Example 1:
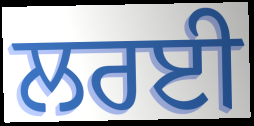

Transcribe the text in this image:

ਲਰਈ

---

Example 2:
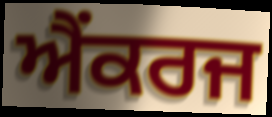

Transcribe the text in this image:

ਐਂਕਰਜ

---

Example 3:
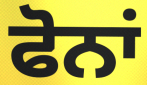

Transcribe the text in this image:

ਫੋਨਾਂ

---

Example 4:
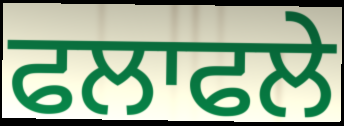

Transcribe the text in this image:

ਫਲਾਫਲੇ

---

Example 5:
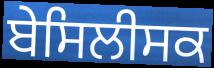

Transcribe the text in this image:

ਬੇਸਿਲੀਸਕ